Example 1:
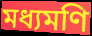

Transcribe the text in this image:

মধ্যমণি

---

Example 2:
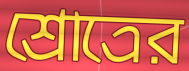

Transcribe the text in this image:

শ্রোত্রের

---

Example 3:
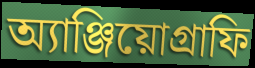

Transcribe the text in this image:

অ্যাঞ্জিয়োগ্রাফি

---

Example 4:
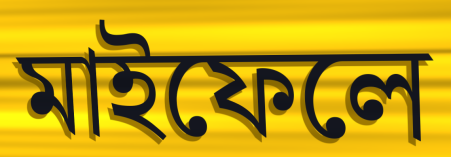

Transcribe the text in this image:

মাইফেলে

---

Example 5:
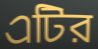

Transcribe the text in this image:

এটির